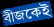
বীজকেই